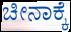
ಚೀನಾಕ್ಕೆ